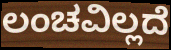
ಲಂಚವಿಲ್ಲದೆ